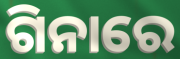
ଗିନାରେ